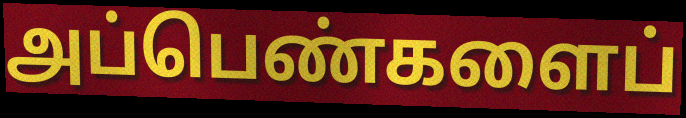
அப்பெண்களைப்